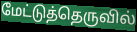
மேட்டுத்தெருவில்